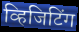
व्हिजिटिंग